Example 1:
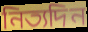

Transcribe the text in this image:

নিত্যদিন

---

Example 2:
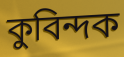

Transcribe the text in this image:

কুবিন্দক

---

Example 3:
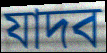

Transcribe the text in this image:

যাদব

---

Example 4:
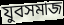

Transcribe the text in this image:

যুবসমাজ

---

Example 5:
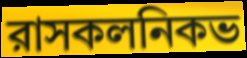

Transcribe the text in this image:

রাসকলনিকভ